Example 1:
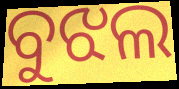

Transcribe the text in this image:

ବୁଝଲ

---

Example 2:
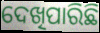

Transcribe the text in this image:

ଦେଖିପାରିଛି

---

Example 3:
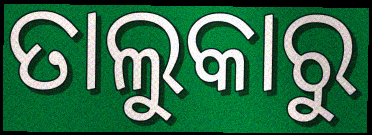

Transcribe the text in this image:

ତାଲୁକାରୁ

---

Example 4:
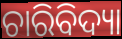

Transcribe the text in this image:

ଚାରିବିଦ୍ୟା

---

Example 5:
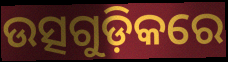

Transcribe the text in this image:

ଉତ୍ସଗୁଡ଼ିକରେ